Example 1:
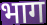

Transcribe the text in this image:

भाग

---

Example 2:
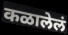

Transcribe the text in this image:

कळालेलं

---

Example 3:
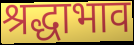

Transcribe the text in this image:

श्रद्धाभाव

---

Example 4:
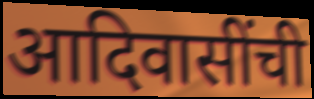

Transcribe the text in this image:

आदिवासींची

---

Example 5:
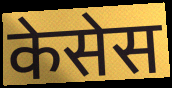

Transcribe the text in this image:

केसेस